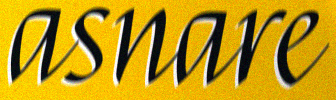
asnare